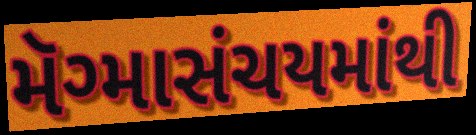
મૅગ્માસંચયમાંથી